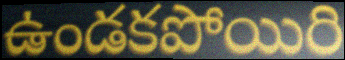
ఉండకపోయిరి